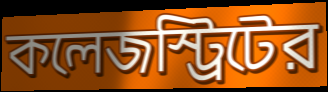
কলেজস্ট্রিটের